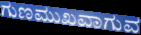
ಗುಣಮುಖವಾಗುವ